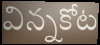
విన్నకోట